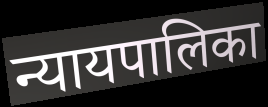
न्यायपालिका